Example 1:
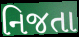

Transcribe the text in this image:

નિજતા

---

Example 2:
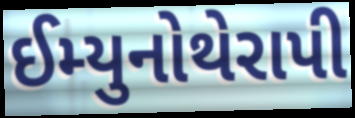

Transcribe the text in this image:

ઈમ્યુનોથેરાપી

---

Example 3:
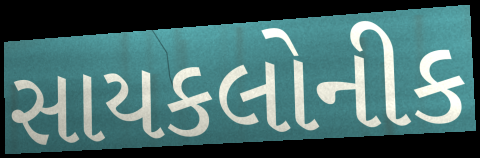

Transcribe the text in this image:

સાયકલોનીક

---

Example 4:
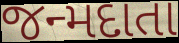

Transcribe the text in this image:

જન્મદાતા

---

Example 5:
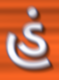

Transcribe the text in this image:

હં